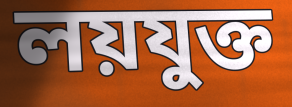
লয়যুক্ত